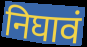
निघावं